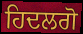
ਹਿਦਲਗੋ